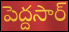
పెద్దసార్